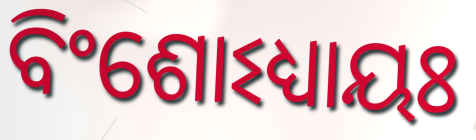
ବିଂଶୋଽଧ୍ୟାୟଃ